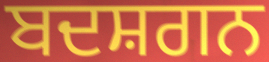
ਬਦਸ਼ਗਨ